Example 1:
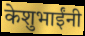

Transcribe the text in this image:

केशुभाईंनी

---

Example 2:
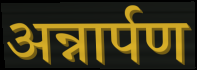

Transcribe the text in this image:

अन्नार्पण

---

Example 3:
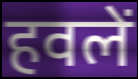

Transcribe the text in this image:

हवलें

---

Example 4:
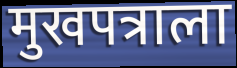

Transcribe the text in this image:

मुखपत्राला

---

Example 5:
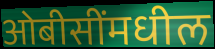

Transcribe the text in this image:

ओबीसींमधील